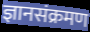
ज्ञानसंक्रमण